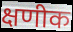
क्षणीक